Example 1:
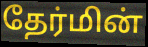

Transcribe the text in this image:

தேர்மின்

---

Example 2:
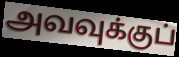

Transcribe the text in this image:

அவவுக்குப்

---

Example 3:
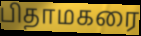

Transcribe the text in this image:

பிதாமகரை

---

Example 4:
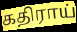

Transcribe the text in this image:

கதிராய்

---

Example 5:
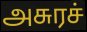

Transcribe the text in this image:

அசுரச்